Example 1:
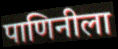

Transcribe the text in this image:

पाणिनीला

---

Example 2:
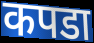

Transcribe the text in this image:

कपडा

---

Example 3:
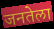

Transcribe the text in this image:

जनतेला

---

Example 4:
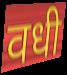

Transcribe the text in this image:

वधी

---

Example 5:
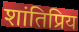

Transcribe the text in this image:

शांतिप्रिय